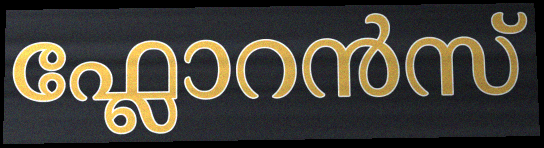
ഫ്ലോറൻസ്